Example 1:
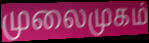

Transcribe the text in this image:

முலைமுகம்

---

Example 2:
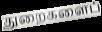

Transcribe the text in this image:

துறைகளைப்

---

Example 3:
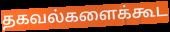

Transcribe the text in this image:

தகவல்களைக்கூட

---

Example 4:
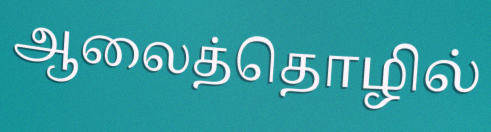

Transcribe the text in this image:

ஆலைத்தொழில்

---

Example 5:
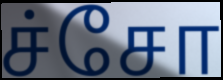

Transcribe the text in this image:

ச்சோ